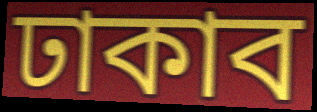
ঢাকাব